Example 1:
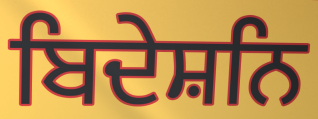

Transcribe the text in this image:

ਬਿਦੇਸ਼ਨਿ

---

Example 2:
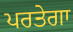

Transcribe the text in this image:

ਪਰਤੇਗਾ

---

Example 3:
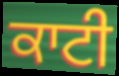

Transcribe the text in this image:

ਕਾਟੀ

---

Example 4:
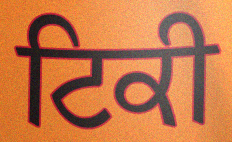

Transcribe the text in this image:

ਟਿਕੀ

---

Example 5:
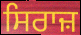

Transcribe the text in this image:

ਸਿਰਾਜ਼